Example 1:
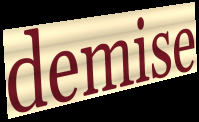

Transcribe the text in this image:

demise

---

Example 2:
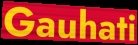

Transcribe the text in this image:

Gauhati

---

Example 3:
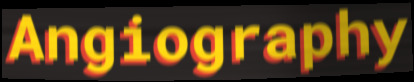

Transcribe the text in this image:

Angiography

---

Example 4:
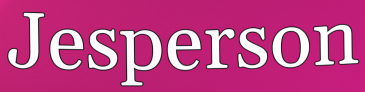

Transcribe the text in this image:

Jesperson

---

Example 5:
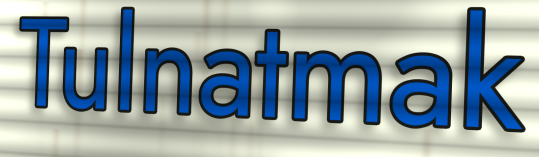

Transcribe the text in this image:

Tulnatmak